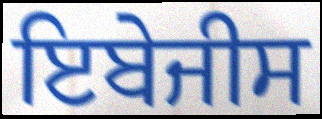
ਇਬੇਜੀਸ